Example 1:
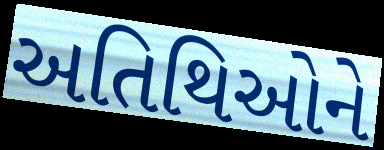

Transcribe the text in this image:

અતિથિઓને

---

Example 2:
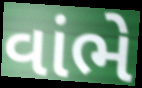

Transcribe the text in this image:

વાંભે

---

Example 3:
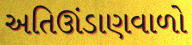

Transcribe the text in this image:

અતિઊંડાણવાળો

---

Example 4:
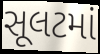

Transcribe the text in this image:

સૂલટમાં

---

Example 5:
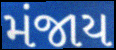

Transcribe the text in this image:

મંજાય